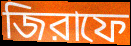
জিরাফে